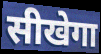
सीखेगा